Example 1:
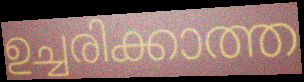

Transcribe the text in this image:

ഉച്ചരിക്കാത്ത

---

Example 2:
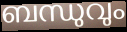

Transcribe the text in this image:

ബന്ധുവും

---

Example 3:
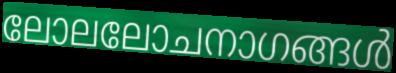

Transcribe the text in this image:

ലോലലോചനാഗങ്ങൾ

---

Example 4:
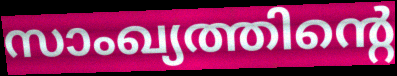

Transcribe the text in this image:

സാംഖ്യത്തിന്റെ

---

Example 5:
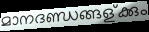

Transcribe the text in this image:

മാനദണ്ഡങ്ങള്ക്കും